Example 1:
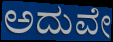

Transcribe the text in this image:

ಅದುವೇ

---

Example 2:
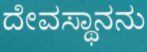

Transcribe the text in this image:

ದೇವಸ್ಥಾನನು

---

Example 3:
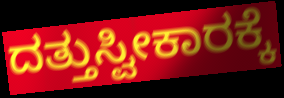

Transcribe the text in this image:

ದತ್ತುಸ್ವೀಕಾರಕ್ಕೆ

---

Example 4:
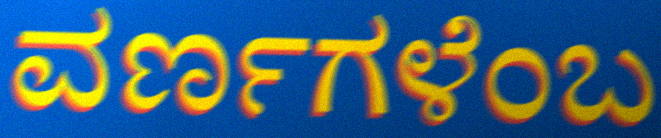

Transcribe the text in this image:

ವರ್ಣಗಳೆಂಬ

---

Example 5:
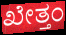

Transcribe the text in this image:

ಖೇತ್ತಂ